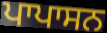
ਪਾਪਾਸਨ